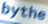
bythe